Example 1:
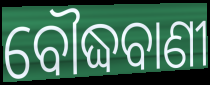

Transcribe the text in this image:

ବୌଦ୍ଧବାଣୀ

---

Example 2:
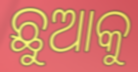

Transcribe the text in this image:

ଛୁଆକୁ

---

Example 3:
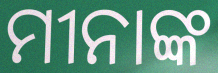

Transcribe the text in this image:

ମୀନାଙ୍କ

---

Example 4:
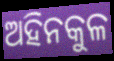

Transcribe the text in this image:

ଅହିନକୁଳ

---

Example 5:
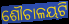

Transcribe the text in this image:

ଶୌଚାଳୟଟି